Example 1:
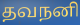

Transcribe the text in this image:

தவநனி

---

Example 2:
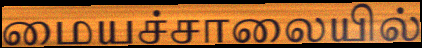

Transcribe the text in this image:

மையச்சாலையில்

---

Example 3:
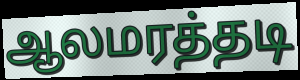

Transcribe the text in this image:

ஆலமரத்தடி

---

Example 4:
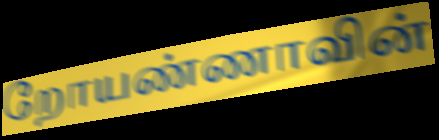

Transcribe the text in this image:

றோயண்ணாவின்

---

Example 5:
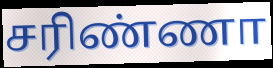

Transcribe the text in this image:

சரிண்ணா